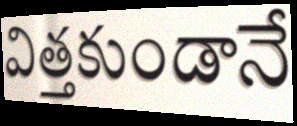
విత్తకుండానే